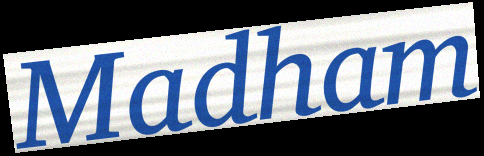
Madham